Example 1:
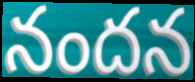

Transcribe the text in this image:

నందన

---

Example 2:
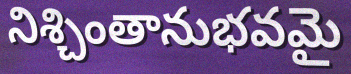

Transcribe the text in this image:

నిశ్చింతానుభవమై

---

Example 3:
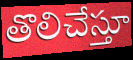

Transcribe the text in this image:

తొలిచేస్తూ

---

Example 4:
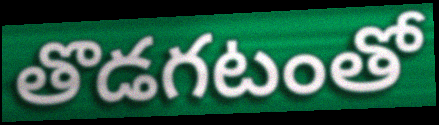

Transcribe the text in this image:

తొడగటంతో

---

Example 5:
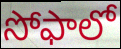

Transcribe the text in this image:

సోఫాలో